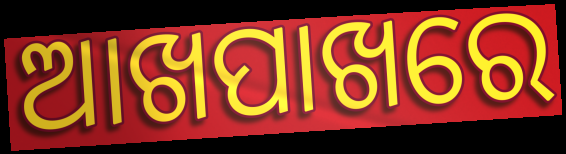
ଆଖପାଖରେ